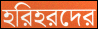
হরিহরদের